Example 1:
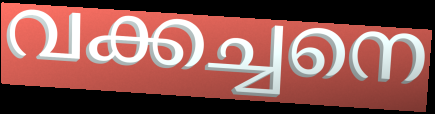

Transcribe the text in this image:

വക്കച്ചനെ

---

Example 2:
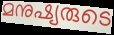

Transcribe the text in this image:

മനുഷ്യരുടെ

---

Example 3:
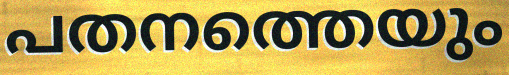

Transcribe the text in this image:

പതനത്തെയും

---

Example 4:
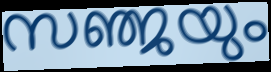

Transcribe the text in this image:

സഞ്ജയും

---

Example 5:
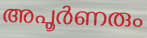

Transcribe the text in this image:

അപൂർണരും